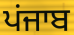
ਪਂਜਾਬ